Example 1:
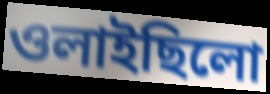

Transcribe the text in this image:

ওলাইছিলো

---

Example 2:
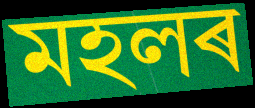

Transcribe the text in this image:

মহলৰ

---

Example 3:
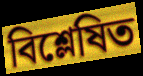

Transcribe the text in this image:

বিশ্লেষিত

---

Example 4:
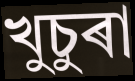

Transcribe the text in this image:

খুচুৰা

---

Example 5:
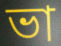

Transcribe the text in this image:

ভা